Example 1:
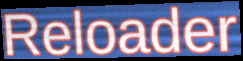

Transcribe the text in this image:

Reloader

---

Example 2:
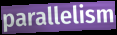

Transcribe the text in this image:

parallelism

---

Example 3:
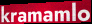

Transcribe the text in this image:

kramamlo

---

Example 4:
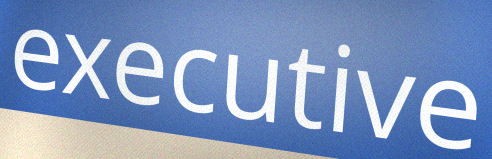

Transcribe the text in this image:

executive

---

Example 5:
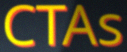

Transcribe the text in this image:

CTAs